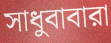
সাধুবাবারা